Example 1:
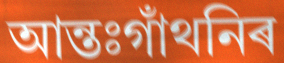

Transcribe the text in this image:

আন্তঃগাঁথনিৰ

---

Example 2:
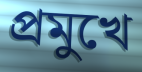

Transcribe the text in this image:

প্ৰমুখে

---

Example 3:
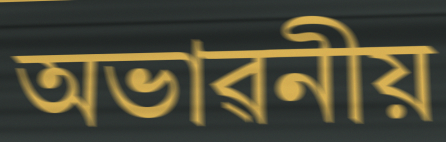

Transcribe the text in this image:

অভাৱনীয়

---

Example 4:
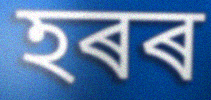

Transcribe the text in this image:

হৰৰ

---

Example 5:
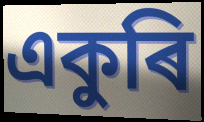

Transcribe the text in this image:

একুৰি